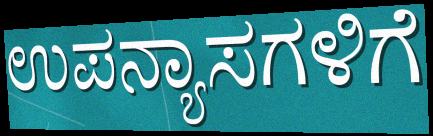
ಉಪನ್ಯಾಸಗಳಿಗೆ